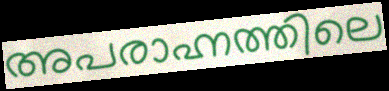
അപരാഹ്നത്തിലെ